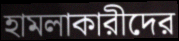
হামলাকারীদের